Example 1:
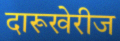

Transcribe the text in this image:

दारूखेरीज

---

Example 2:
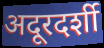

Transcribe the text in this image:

अदूरदर्शी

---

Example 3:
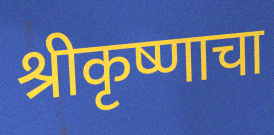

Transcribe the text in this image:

श्रीकृष्णाचा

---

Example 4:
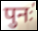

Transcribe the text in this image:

पुनः॑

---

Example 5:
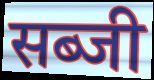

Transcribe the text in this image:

सब्जी